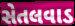
સેતલવાડ